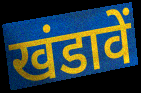
खंडावें